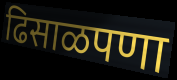
ढिसाळपणा